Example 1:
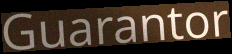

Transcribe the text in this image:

Guarantor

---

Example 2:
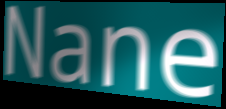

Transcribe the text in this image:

Nane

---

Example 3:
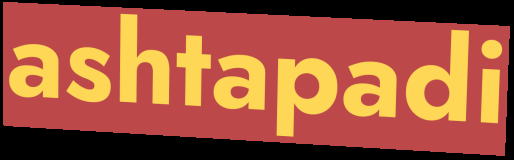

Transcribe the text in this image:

ashtapadi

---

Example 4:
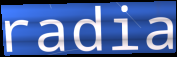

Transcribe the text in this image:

radia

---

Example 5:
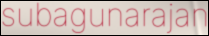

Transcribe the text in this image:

subagunarajan